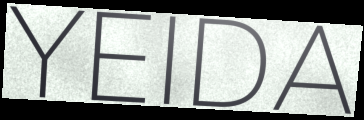
YEIDA